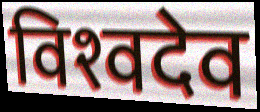
विश्वदेव